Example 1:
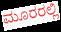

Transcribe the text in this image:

ಮೂರರಲ್ಲಿ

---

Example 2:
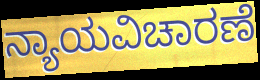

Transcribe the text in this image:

ನ್ಯಾಯವಿಚಾರಣೆ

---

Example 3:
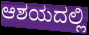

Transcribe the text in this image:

ಆಶಯದಲ್ಲಿ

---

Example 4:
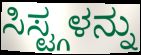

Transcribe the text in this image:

ಸಿಸ್ಟ್ಗಳನ್ನು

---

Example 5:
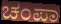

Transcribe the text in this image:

ಚಂಪಾ